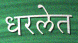
धरलेत